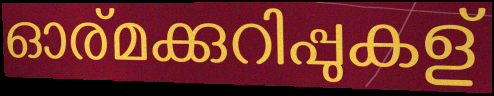
ഓര്മക്കുറിപ്പുകള്